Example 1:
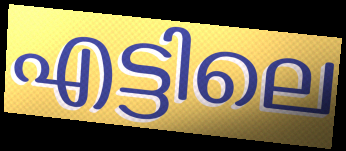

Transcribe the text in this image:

എട്ടിലെ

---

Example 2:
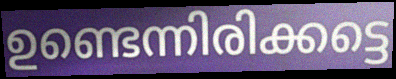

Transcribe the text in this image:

ഉണ്ടെന്നിരിക്കട്ടെ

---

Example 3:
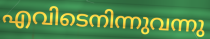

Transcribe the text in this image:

എവിടെനിന്നുവന്നു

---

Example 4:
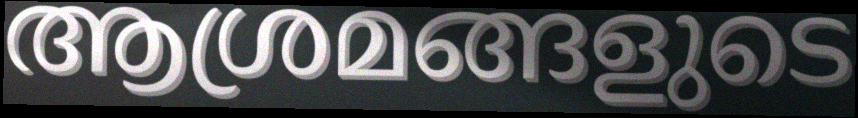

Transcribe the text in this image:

ആശ്രമങ്ങളുടെ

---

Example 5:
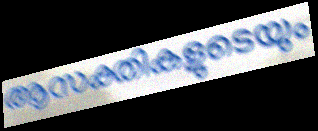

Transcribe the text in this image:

ആസക്തികളുടെയും